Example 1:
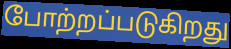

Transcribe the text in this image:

போற்றப்படுகிறது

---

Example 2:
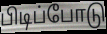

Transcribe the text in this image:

பிடிப்போடு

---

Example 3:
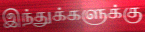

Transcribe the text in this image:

இந்துக்களுக்கு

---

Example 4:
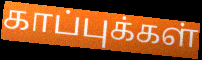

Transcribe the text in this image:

காப்புக்கள்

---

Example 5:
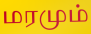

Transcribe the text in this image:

மரமும்